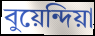
বুয়েন্দিয়া